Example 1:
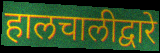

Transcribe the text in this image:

हालचालीद्वारे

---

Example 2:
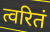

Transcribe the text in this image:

त्वरितं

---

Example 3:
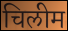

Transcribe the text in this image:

चिलीम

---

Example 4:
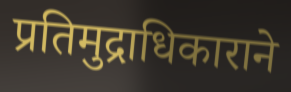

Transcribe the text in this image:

प्रतिमुद्राधिकाराने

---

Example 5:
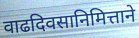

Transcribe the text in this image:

वाढदिवसानिमित्ताने